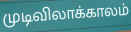
முடிவிலாக்காலம்